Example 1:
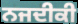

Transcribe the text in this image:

ਨਜਦੀਕੀ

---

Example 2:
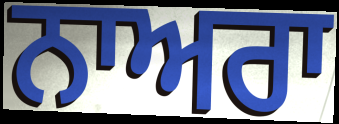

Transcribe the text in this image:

ਨਾਅਰਾ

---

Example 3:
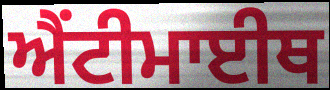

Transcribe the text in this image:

ਐਂਟੀਮਾਈਥ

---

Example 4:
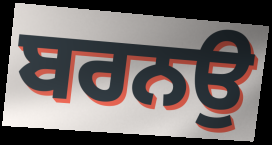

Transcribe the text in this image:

ਬਰਨਉ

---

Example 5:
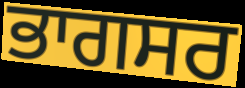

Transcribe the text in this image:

ਭਾਗਸਰ